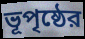
ভূপৃষ্ঠের